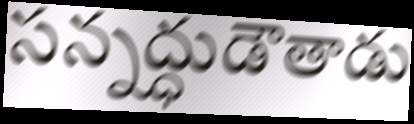
సన్నద్ధుడౌతాడు